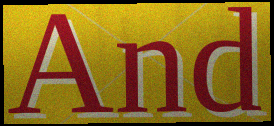
And